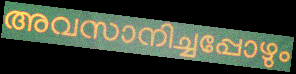
അവസാനിച്ചപ്പോഴും